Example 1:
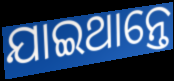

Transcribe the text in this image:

ଯାଇଥାନ୍ତେ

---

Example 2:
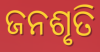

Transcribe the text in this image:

ଜନଶୃତି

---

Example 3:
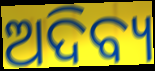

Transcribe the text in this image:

ଅଦିବ୍ୟ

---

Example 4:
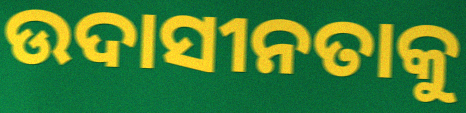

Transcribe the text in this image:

ଉଦାସୀନତାକୁ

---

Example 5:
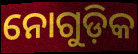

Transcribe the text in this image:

ନୋଗୁଡ଼ିକ